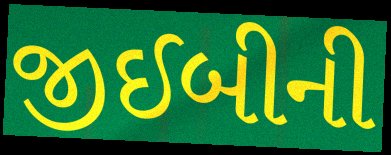
જીઈબીની